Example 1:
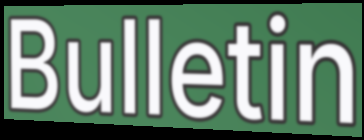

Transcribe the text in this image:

Bulletin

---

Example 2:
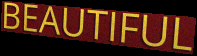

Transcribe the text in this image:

BEAUTIFUL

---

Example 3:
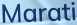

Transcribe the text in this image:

Marati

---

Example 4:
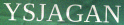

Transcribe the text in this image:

YSJAGAN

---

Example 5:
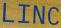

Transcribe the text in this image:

LINC